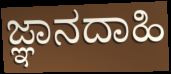
ಜ್ಞಾನದಾಹಿ